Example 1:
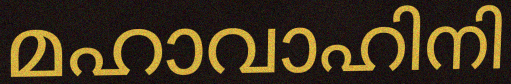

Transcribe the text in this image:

മഹാവാഹിനി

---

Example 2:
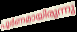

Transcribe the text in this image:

പൂർണമായിരുന്നു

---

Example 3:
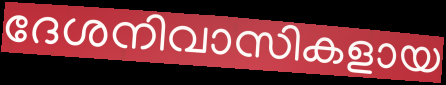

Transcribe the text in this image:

ദേശനിവാസികളായ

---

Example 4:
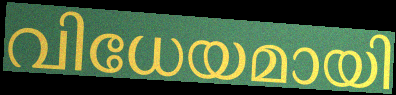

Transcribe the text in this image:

വിധേയമായി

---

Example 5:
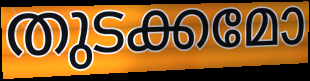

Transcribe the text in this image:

തുടക്കമോ